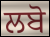
ਲਬੋ